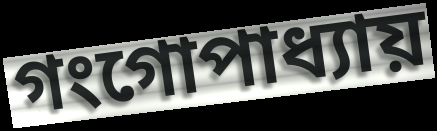
গংগোপাধ্যায়